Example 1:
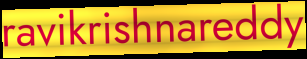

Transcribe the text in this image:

ravikrishnareddy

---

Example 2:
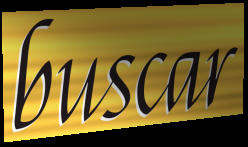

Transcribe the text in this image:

buscar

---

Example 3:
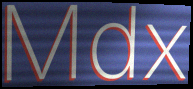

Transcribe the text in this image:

Mdx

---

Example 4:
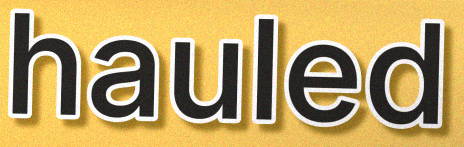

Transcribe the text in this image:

hauled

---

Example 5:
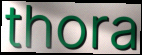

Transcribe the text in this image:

thora